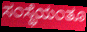
ಸಂಸ್ಥೆಯಂತೂ